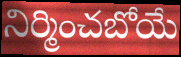
నిర్మించబోయే